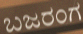
ಬಜರಂಗ